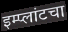
इम्प्लांटचा